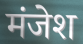
मंजेश